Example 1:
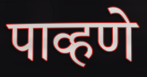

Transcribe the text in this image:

पाव्हणे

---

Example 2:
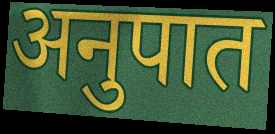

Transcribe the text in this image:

अनुपात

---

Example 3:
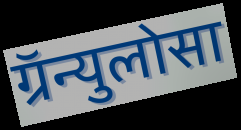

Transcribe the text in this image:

ग्रॅन्युलोसा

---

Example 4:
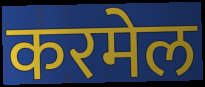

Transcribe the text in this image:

करमेल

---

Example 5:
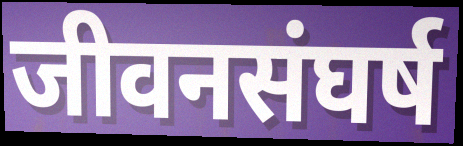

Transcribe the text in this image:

जीवनसंघर्ष